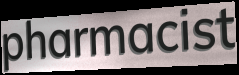
pharmacist